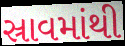
સ્રાવમાંથી